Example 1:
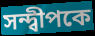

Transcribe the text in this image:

সন্দ্বীপকে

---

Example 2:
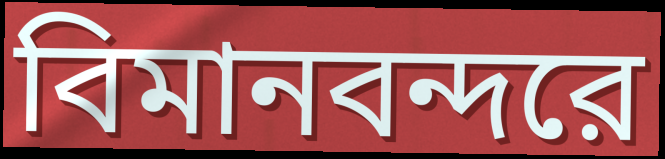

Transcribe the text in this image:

বিমানবন্দরে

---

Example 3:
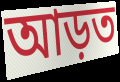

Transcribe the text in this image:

আড়ত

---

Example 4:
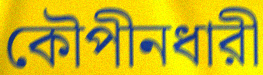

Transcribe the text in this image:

কৌপীনধারী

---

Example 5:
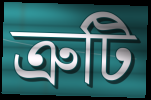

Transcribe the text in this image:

ত্রুটি